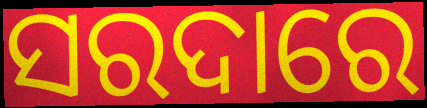
ସରଦାରେ